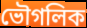
ভৌগলিক